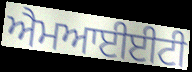
ਐਮਆਈਈਟੀ